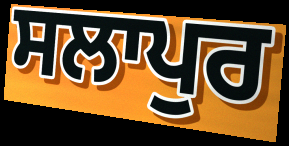
ਸਲਾਪੁਰ